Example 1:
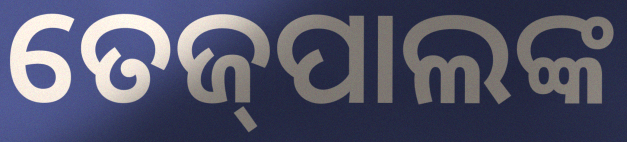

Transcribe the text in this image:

ତେଜ୍‌ପାଲଙ୍କ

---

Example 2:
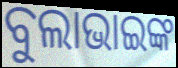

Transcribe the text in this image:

ବୁଲାଭାଇଙ୍କ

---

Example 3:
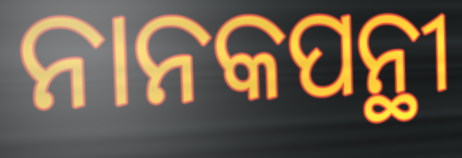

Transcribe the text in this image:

ନାନକପନ୍ଥୀ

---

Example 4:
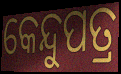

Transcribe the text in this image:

କେନ୍ଦୁପତ୍ର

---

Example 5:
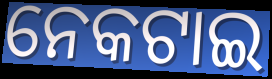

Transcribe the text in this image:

ନେକଟାଇ